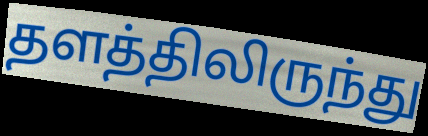
தளத்திலிருந்து